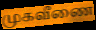
முகவீணை